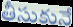
తీసుకునే